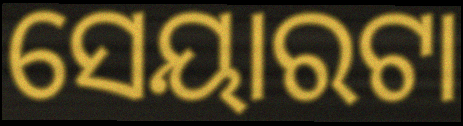
ସେୟାରଟା